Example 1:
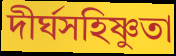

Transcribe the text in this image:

দীর্ঘসহিষ্ণুতা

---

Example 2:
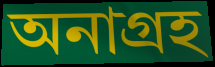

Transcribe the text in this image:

অনাগ্রহ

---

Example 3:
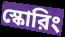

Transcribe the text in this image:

স্কোরিং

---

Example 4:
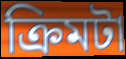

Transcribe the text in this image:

ক্রিমটা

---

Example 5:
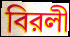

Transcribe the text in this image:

বিরলী